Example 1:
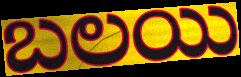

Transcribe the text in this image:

బలయి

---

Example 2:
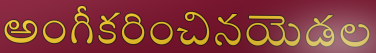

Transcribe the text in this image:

అంగీకరించినయెడల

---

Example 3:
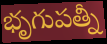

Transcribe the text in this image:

భృగుపత్నీ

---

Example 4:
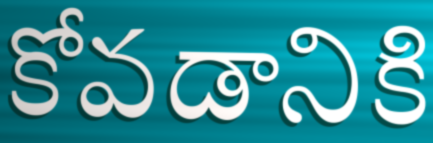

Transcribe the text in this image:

కోవడానికి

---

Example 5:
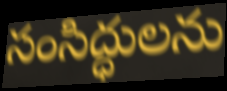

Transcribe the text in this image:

సంసిద్ధులను